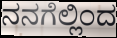
ನನಗೆಲ್ಲಿಂದ